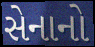
સેનાનો